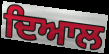
ਦਿਆਲ